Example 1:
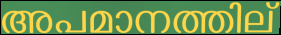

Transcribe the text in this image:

അപമാനത്തില്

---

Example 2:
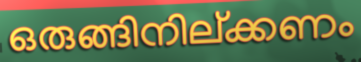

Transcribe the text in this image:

ഒരുങ്ങിനില്ക്കണം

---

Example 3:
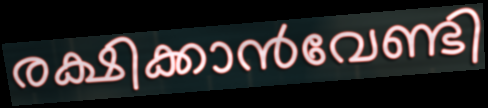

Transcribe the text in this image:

രക്ഷിക്കാൻവേണ്ടി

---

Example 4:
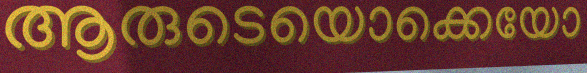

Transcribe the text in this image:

ആരുടെയൊക്കെയോ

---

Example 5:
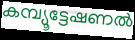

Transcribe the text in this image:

കമ്പ്യൂട്ടേഷണൽ